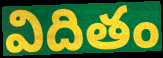
విదితం